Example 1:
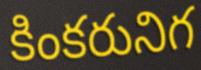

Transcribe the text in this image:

కింకరునిగ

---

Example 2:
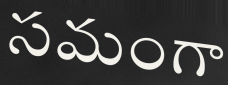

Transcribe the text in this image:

సమంగా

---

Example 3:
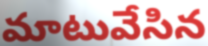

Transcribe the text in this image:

మాటువేసిన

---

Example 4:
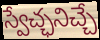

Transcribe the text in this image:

స్వేచ్ఛనిచ్చే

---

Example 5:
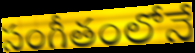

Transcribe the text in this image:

సంగీతంలోనే